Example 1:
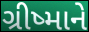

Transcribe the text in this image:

ગ્રીષ્માને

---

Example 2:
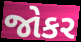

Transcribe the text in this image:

જોકર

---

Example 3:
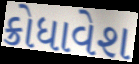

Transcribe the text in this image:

ક્રોધાવેશ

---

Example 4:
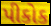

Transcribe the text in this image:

પીકોક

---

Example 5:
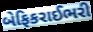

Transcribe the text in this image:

બેફિકરાઈભરી